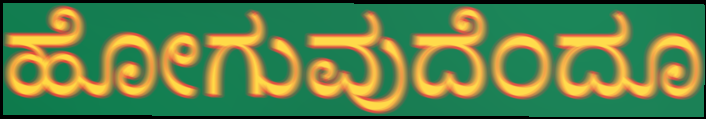
ಹೋಗುವುದೆಂದೂ